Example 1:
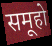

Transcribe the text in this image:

समूहो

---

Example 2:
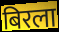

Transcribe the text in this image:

बिरला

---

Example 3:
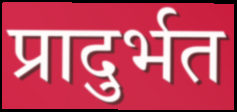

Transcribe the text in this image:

प्रादुर्भत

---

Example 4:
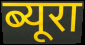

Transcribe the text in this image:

ब्यूरा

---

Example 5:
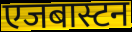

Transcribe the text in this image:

एजबास्टन